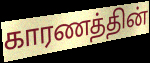
காரணத்தின்